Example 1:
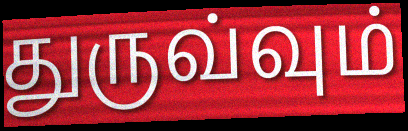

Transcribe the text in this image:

துருவ்வும்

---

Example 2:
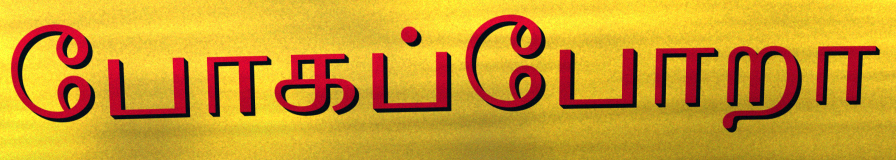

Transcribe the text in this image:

போகப்போறா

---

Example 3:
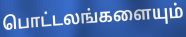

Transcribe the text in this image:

பொட்டலங்களையும்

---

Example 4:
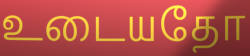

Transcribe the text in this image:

உடையதோ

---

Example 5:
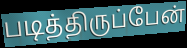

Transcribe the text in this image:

படித்திருப்பேன்